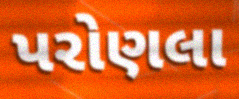
પરોણલા